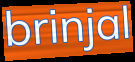
brinjal